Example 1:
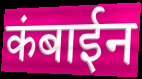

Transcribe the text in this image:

कंबाईन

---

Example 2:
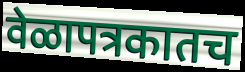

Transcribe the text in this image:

वेळापत्रकातच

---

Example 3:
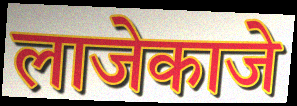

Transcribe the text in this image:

लाजेकाजे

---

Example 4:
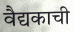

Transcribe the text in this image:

वैद्यकाची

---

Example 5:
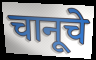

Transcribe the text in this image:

चानूचे